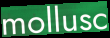
mollusc